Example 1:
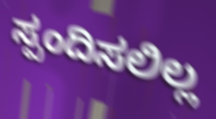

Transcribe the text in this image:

ಸ್ಪಂದಿಸಲಿಲ್ಲ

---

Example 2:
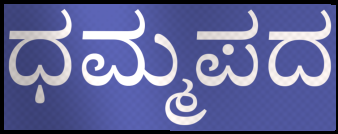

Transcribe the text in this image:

ಧಮ್ಮಪದ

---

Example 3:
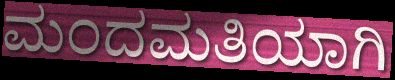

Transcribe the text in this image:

ಮಂದಮತಿಯಾಗಿ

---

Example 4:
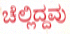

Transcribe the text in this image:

ಚೆಲ್ಲಿದ್ದವು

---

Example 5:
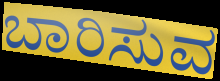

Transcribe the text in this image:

ಬಾರಿಸುವ